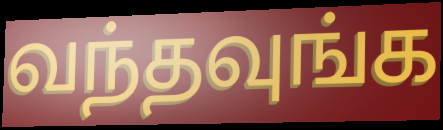
வந்தவுங்க